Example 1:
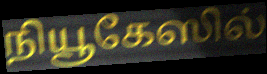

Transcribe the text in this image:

நியூகேஸில்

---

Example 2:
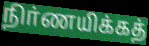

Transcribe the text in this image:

நிர்ணயிக்கத்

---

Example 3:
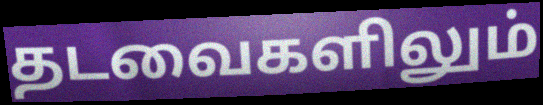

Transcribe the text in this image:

தடவைகளிலும்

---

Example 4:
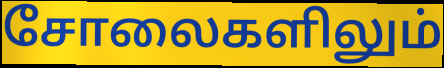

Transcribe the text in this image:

சோலைகளிலும்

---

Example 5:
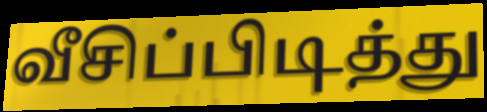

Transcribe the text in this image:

வீசிப்பிடித்து